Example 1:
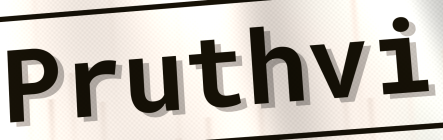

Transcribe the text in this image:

Pruthvi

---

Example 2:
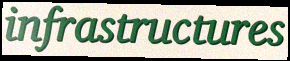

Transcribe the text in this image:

infrastructures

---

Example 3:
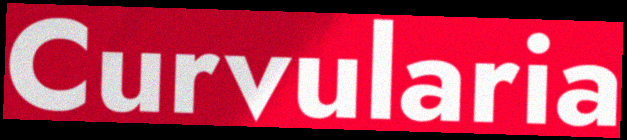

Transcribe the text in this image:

Curvularia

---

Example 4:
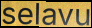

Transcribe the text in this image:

selavu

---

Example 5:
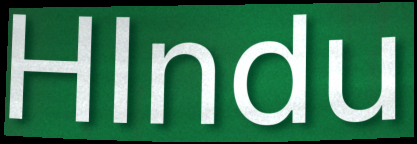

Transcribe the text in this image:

HIndu